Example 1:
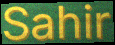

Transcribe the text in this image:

Sahir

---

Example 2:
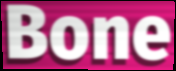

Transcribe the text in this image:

Bone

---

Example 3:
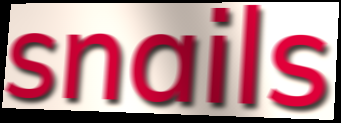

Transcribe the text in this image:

snails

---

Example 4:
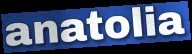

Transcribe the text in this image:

anatolia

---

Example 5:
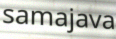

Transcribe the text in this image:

samajava